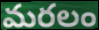
మరలం